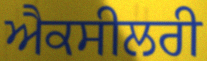
ਐਕਸੀਲਰੀ